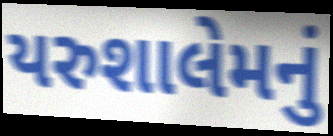
યરુશાલેમનું